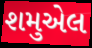
શમુએલ